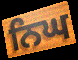
ਨਿਘ